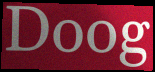
Doog